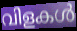
വിളകൾ